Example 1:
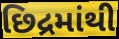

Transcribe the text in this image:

છિદ્રમાંથી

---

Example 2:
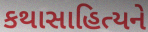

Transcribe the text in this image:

કથાસાહિત્યને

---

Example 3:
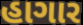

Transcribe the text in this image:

હાગાર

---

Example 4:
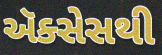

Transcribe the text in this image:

ઍક્સેસથી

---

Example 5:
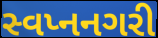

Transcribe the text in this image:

સ્વપ્નનગરી